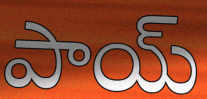
పాయ్